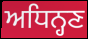
ਅਧਿਨ੍ਹਣ